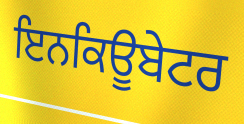
ਇਨਕਿਊਬੇਟਰ